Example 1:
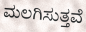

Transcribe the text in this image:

ಮಲಗಿಸುತ್ತವೆ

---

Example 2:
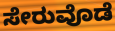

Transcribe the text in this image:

ಸೇರುವೊಡೆ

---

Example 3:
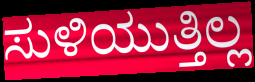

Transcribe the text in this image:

ಸುಳಿಯುತ್ತಿಲ್ಲ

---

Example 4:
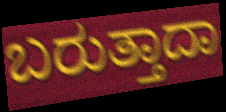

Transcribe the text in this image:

ಬರುತ್ತಾದಾ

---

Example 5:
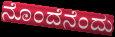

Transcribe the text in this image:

ನೊಂದೆನೆಂದು